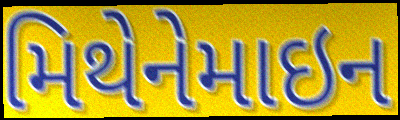
મિથેનેમાઇન